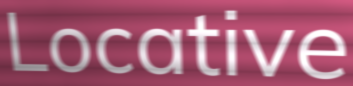
Locative